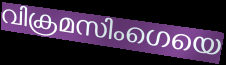
വിക്രമസിംഗെയെ